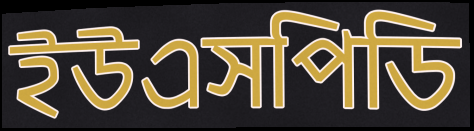
ইউএসপিডি